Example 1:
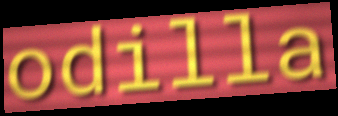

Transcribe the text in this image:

odilla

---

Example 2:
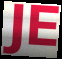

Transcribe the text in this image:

JE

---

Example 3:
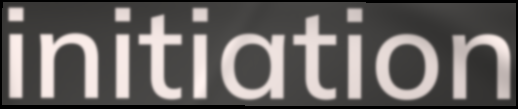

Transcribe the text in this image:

initiation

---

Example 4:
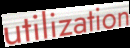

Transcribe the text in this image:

utilization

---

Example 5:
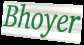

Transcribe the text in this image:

Bhoyer